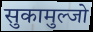
सुकामुल्जो